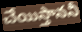
చేయిస్తాననీ